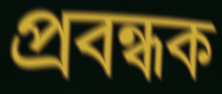
প্ৰবন্ধক